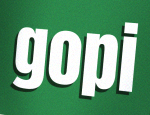
gopi